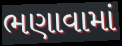
ભણાવામાં